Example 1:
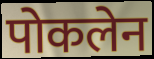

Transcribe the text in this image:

पोकलेन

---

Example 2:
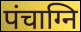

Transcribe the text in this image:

पंचाग्नि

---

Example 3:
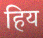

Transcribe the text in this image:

हिय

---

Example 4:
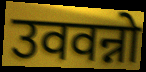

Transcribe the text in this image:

उववन्नो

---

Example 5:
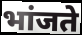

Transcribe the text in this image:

भांजते